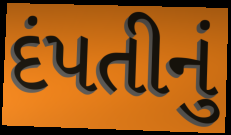
દંપતીનું